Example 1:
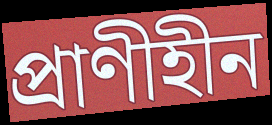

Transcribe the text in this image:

প্রাণীহীন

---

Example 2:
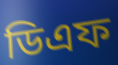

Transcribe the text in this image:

ডিএফ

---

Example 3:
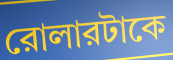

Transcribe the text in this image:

রোলারটাকে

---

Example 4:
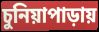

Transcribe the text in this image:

চুনিয়াপাড়ায়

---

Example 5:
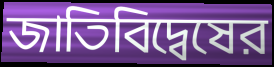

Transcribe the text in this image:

জাতিবিদ্বেষের